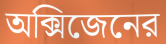
অক্সিজেনের